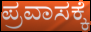
ಪ್ರವಾಸಕ್ಕೆ